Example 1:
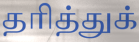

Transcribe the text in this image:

தரித்துக்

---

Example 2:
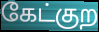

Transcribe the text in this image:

கேட்குற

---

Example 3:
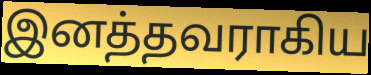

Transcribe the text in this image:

இனத்தவராகிய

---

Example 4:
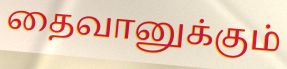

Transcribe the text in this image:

தைவானுக்கும்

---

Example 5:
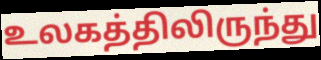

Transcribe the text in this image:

உலகத்திலிருந்து